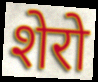
शेरो